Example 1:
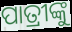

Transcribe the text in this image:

ପାତ୍ରୀଙ୍କୁ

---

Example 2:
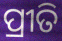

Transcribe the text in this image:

ପ୍ରୀତି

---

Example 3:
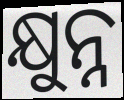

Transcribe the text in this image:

କ୍ଷୁନ୍ନ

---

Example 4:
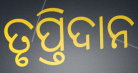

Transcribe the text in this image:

ତୃପ୍ତିଦାନ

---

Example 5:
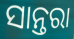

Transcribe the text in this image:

ସାନ୍ତରା